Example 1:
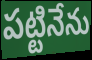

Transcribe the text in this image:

పట్టినేను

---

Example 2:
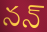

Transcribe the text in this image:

నన్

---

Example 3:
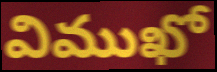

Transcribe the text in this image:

విముఖో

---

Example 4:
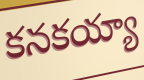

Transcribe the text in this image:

కనకయ్యా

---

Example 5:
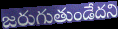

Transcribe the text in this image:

జరుగుతుండేదని